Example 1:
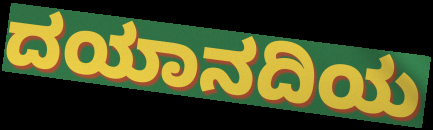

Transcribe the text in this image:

ದಯಾನದಿಯ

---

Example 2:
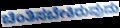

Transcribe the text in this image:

ಚಿಂತಿಸಬೇಕಿರುವುದು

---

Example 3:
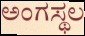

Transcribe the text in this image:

ಅಂಗಸ್ಥಲ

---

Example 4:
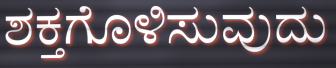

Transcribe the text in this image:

ಶಕ್ತಗೊಳಿಸುವುದು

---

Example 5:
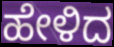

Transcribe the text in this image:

ಹೇಳಿದ